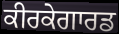
ਕੀਰਕੇਗਾਰਡ